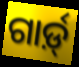
ଗାର୍ଡ଼୍